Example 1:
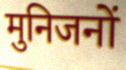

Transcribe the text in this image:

मुनिजनों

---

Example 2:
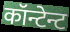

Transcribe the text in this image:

कॉन्टेन्ट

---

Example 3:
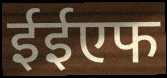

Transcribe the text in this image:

ईईएफ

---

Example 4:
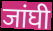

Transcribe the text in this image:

जांघी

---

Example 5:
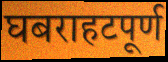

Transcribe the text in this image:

घबराहटपूर्ण